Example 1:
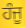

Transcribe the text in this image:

ਹੰਜੂ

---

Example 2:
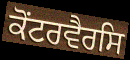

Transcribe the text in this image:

ਕੋਂਟਰਵੈਰਸਿ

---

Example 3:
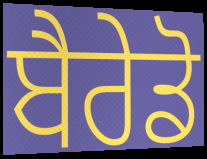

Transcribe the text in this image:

ਬੈਰੇਡੋ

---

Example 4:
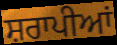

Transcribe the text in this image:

ਸ਼ਰਾਪੀਆਂ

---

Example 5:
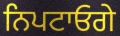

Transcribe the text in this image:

ਨਿਪਟਾਓਗੇ